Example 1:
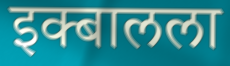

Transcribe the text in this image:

इक्बालला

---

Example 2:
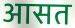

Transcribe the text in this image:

आसत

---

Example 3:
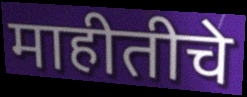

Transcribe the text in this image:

माहीतीचे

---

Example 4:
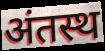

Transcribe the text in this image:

अंतस्थ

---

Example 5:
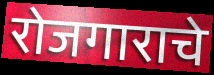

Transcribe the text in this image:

रोजगाराचे